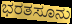
ಭರತಸೂನು